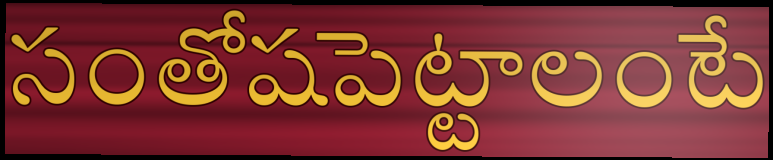
సంతోషపెట్టాలంటే